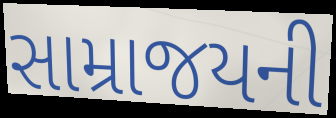
સામ્રાજયની